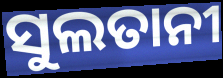
ସୁଲତାନୀ